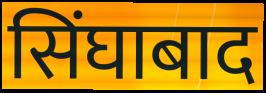
सिंघाबाद